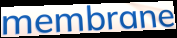
membrane